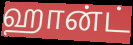
ஹான்ட்